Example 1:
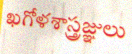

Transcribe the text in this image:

ఖగోళశాస్త్రజ్ఞులు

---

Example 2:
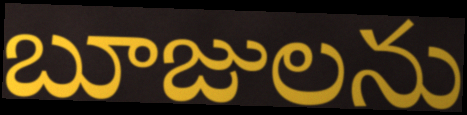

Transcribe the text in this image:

బూజులను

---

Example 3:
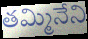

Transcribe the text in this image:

తమ్మినేని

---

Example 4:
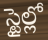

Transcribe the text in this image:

స్టైల్లో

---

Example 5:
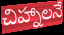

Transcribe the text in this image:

చిహ్నాలనే